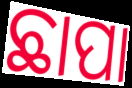
ଛାପା